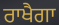
ਰਾਖੈਗਾ